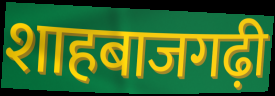
शाहबाजगढ़ी